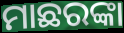
ମାଛରଙ୍କା